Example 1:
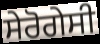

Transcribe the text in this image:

ਸੇਰੋਗੇਸੀ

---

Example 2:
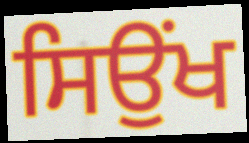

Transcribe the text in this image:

ਸਿਉਂਖ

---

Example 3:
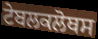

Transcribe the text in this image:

ਟੇਬਲਕਲੋਥਸ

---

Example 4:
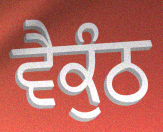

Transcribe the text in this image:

ਵੈਕੁੰਠ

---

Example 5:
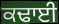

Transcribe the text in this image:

ਕਢਾਈ